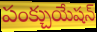
పంక్చుయేషన్